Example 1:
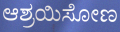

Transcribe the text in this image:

ಆಶ್ರಯಿಸೋಣ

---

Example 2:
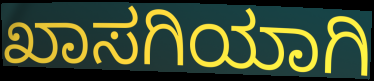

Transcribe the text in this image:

ಖಾಸಗಿಯಾಗಿ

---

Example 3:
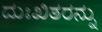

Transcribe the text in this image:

ದುಃಖಿತರನ್ನು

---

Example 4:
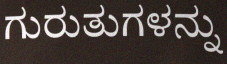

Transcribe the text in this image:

ಗುರುತುಗಳನ್ನು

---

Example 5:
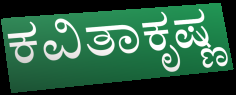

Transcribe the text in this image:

ಕವಿತಾಕೃಷ್ಣ